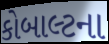
કોબાલ્ટના